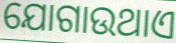
ଯୋଗାଉଥାଏ